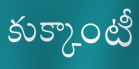
కుక్కాంటీ